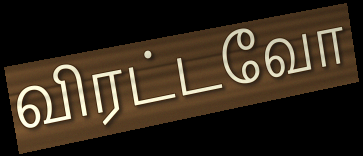
விரட்டவோ